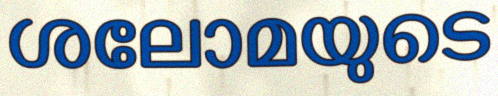
ശലോമയുടെ